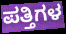
ಪತ್ತಿಗಳ